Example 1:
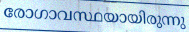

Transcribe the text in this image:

രോഗാവസ്ഥയായിരുന്നു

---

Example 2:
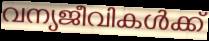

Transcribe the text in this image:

വന്യജീവികൾക്ക്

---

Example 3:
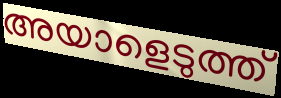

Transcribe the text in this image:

അയാളെടുത്ത്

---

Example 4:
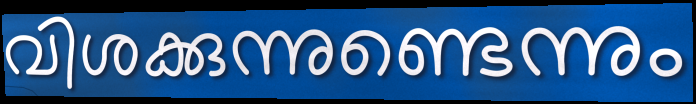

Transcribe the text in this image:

വിശക്കുന്നുണ്ടെന്നും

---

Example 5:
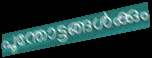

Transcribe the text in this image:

പൂന്തോട്ടങ്ങൾക്കും